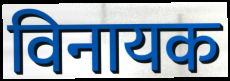
विनायक